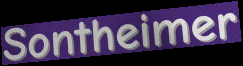
Sontheimer